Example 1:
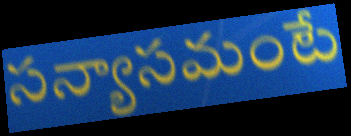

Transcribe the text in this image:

సన్యాసమంటే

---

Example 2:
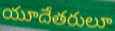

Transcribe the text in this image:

యూదేతరులూ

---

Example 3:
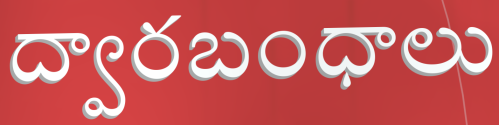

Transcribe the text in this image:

ద్వారబంధాలు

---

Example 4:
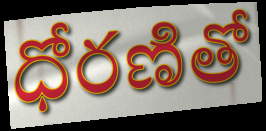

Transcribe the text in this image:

ధోరణితో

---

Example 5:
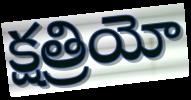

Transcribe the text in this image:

క్షత్రియో